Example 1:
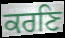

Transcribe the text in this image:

ਕਰਣਿ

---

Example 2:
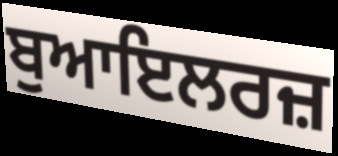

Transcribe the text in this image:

ਬੁਆਇਲਰਜ਼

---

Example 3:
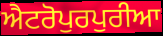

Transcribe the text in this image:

ਐਟਰੋਪੁਰਪੁਰੀਆ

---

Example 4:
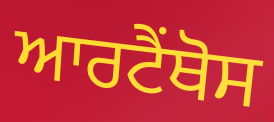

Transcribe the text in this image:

ਆਰਟੈਂਥੋਸ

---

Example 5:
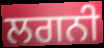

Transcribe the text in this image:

ਲਗਨੀ